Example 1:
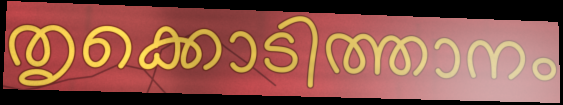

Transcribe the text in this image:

തൃക്കൊടിത്താനം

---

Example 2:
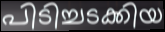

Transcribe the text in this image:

പിടിച്ചടക്കിയ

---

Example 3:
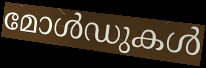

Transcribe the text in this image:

മോൾഡുകൾ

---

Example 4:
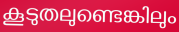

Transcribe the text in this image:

കൂടുതലുണ്ടെങ്കിലും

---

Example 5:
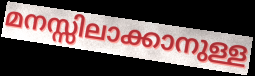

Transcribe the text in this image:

മനസ്സിലാക്കാനുള്ള